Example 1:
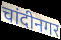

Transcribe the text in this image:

चांदीनगर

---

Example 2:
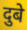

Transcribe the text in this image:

दुबे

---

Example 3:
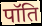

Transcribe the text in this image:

पॉति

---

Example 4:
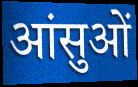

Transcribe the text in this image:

आंसुओं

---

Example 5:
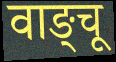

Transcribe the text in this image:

वाङ्चू